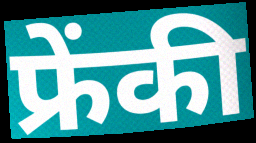
फ्रेंकी